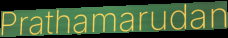
Prathamarudan